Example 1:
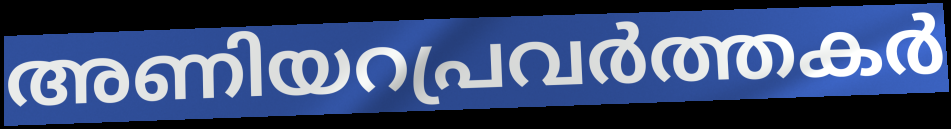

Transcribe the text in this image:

അണിയറപ്രവർത്തകർ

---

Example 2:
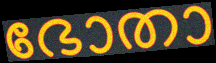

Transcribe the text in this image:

ഭോതാ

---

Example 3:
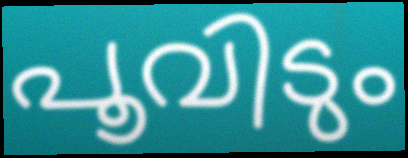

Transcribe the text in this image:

പൂവിടും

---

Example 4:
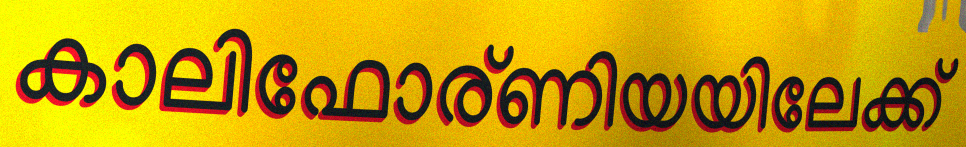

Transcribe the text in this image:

കാലിഫോര്ണിയയിലേക്ക്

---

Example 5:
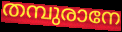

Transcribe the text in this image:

തമ്പുരാനേ